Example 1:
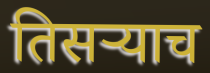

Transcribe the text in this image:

तिसर्‍याच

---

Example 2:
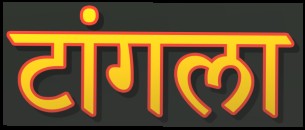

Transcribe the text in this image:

टांगला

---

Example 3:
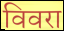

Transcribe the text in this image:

विवरा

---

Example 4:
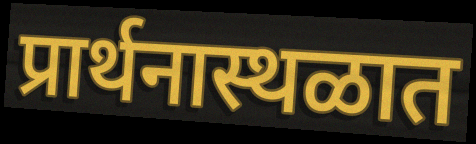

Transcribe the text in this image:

प्रार्थनास्थळात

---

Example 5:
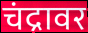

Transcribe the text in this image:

चंद्रावर